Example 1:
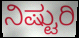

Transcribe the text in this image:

ನಿಷ್ಟುರಿ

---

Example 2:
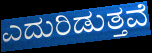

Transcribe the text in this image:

ಎದುರಿಡುತ್ತವೆ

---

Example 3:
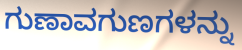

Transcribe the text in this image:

ಗುಣಾವಗುಣಗಳನ್ನು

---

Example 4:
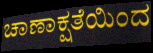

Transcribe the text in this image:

ಚಾಣಾಕ್ಷತೆಯಿಂದ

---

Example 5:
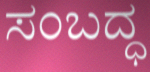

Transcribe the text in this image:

ಸಂಬದ್ಧ